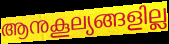
ആനുകൂല്യങ്ങളില്ല